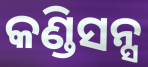
କଣ୍ଡିସନ୍ସ